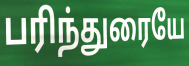
பரிந்துரையே